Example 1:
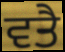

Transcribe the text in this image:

ਵਤੈ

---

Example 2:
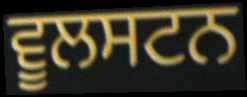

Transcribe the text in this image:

ਵੂਲਸਟਨ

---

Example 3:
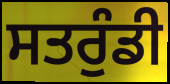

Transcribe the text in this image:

ਸਤਰੁੰਡੀ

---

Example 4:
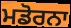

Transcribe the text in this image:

ਮਡੋਰਨਾ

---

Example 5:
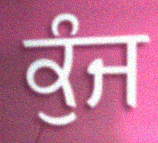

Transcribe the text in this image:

ਕੁੰਜ